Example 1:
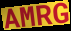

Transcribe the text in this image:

AMRG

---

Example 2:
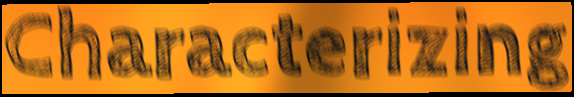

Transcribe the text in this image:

Characterizing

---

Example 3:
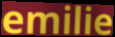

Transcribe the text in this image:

emilie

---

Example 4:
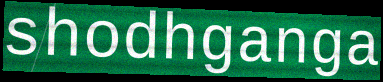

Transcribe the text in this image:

shodhganga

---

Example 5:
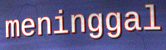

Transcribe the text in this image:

meninggal